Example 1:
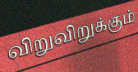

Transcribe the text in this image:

விறுவிறுக்கும்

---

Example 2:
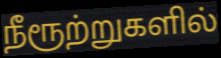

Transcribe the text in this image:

நீரூற்றுகளில்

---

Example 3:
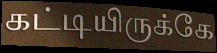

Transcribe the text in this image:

கட்டியிருக்கே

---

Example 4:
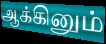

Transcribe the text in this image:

ஆக்கினும்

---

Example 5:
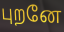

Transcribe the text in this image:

புறனே